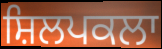
ਸ਼ਿਲਪਕਲਾ